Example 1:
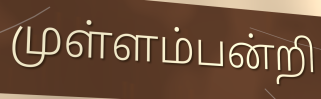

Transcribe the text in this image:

முள்ளம்பன்றி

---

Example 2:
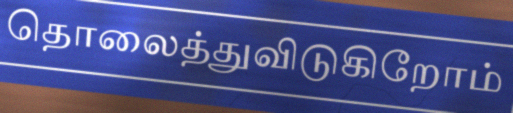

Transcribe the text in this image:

தொலைத்துவிடுகிறோம்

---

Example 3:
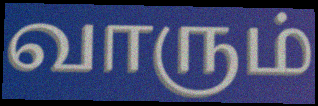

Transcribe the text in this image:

வாரும்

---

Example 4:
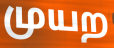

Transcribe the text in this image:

முயற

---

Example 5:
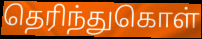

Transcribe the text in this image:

தெரிந்துகொள்